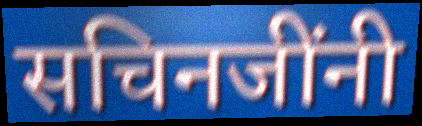
सचिनजींनी